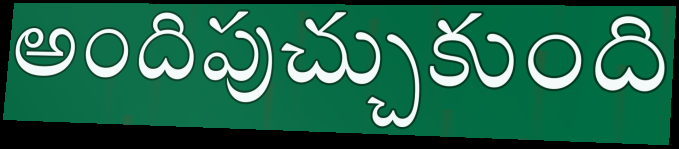
అందిపుచ్చుకుంది